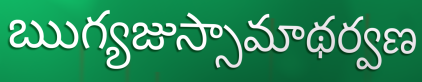
ఋగ్యజుస్సామాథర్వణ